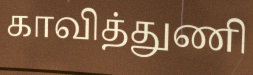
காவித்துணி